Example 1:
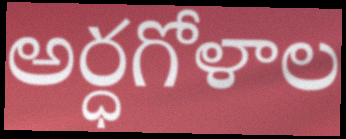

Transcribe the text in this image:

అర్ధగోళాల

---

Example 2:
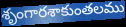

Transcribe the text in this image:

శృంగారశాకుంతలము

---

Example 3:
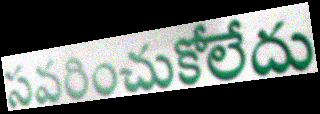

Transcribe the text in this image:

సవరించుకోలేదు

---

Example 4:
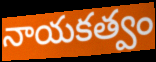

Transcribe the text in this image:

నాయకత్వం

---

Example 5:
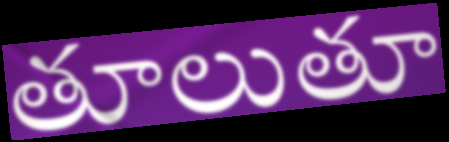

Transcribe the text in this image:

తూలుతూ